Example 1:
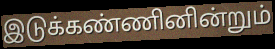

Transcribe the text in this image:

இடுக்கண்ணினின்றும்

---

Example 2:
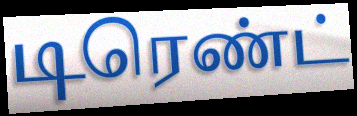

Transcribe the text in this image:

டிரெண்ட்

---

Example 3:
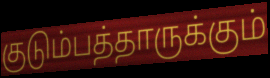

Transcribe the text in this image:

குடும்பத்தாருக்கும்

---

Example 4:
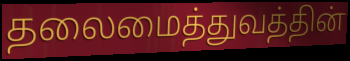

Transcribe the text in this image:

தலைமைத்துவத்தின்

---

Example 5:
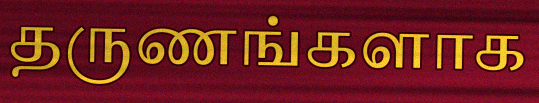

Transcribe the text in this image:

தருணங்களாக